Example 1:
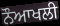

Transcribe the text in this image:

ਨੌਆਖਲੀ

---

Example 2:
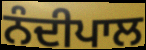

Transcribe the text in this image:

ਨੰਦੀਪਾਲ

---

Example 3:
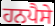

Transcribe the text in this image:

ਹਨਪੈਸੇ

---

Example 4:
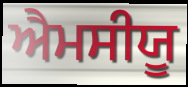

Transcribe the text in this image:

ਐਮਸੀਯੂ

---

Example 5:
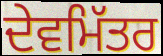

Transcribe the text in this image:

ਦੇਵਮਿੱਤਰ